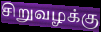
சிறுவழக்கு